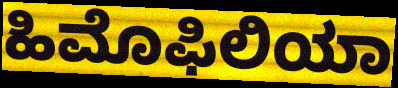
ಹಿಮೊಫಿಲಿಯಾ